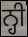
ਨ੍ਹੀ